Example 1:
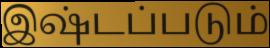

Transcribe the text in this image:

இஷ்டப்படும்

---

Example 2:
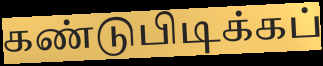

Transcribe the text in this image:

கண்டுபிடிக்கப்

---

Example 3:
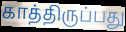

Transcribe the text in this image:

காத்திருப்பது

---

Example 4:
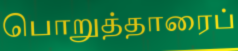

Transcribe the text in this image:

பொறுத்தாரைப்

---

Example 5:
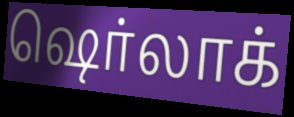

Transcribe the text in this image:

ஷெர்லாக்